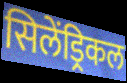
सिलेंड्रिकल